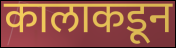
कालाकडून